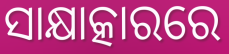
ସାକ୍ଷାତ୍କାରରେ